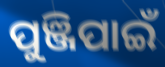
ପୁଞ୍ଜିପାଇଁ